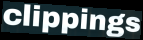
clippings